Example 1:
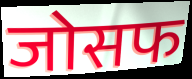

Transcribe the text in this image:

जोसफ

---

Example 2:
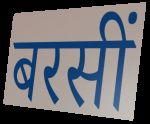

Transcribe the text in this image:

बरसीं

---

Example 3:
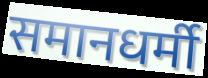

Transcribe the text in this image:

समानधर्मी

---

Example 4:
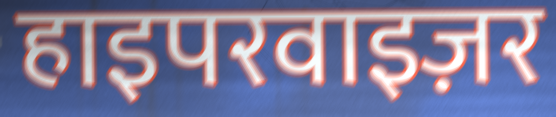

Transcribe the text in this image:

हाइपरवाइज़र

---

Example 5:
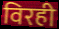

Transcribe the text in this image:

विरही